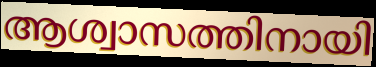
ആശ്വാസത്തിനായി